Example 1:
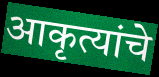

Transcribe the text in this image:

आकृत्यांचे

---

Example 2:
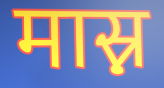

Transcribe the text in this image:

मास्न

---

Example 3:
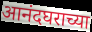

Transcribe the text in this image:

आनंदघराच्या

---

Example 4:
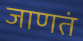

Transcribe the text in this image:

जाणतं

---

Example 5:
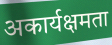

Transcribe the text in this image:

अकार्यक्षमता